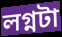
লগ্নটা